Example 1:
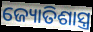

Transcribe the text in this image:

ଜ୍ୟୋତିଶାସ୍ତ୍ର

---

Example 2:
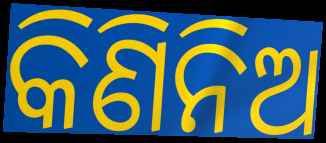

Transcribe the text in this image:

କିଣିନିଅ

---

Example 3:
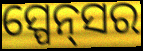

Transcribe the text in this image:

ସ୍ପେନ୍‌ସର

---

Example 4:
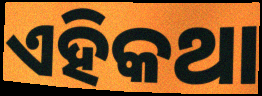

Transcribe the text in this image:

ଏହିକଥା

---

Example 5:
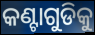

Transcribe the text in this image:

କଣ୍ଟାଗୁଡିକୁ